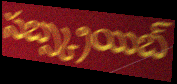
సబ్స్క్రయిబ్